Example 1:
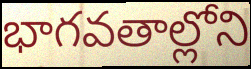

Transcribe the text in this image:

భాగవతాల్లోని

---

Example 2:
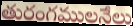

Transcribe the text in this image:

తురంగములనేలు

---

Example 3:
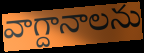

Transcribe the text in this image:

వాగ్దానాలను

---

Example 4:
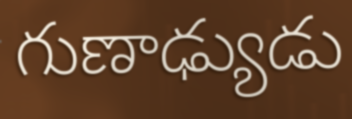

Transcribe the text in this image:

గుణాఢ్యుడు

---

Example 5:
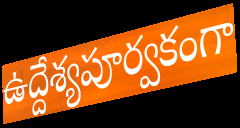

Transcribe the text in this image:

ఉద్దేశ్యపూర్వకంగా